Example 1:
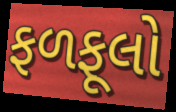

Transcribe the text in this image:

ફળફૂલો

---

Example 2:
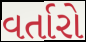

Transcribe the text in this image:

વર્તારો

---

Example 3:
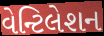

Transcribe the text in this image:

વેન્ટિલેશન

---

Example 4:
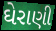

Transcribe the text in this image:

ઘેરાણી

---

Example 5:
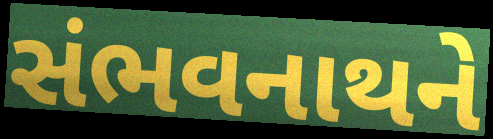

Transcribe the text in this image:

સંભવનાથને